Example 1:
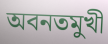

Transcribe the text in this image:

অবনতমুখী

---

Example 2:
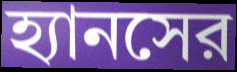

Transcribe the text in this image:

হ্যানসের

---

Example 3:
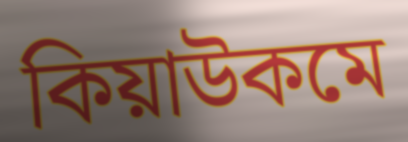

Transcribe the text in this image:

কিয়াউকমে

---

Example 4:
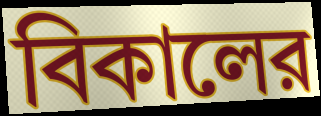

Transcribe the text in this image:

বিকালের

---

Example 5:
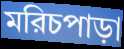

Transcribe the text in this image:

মরিচপাড়া